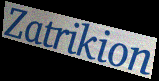
Zatrikion